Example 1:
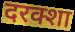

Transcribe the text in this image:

दरक्शा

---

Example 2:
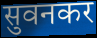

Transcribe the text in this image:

सुवनकर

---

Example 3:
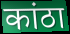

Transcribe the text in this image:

कांठा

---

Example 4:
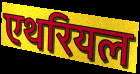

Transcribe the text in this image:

एथरियल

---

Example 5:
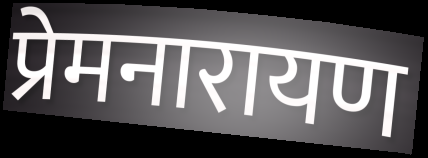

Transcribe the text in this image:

प्रेमनारायण